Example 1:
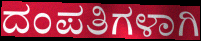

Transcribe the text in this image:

ದಂಪತಿಗಳಾಗಿ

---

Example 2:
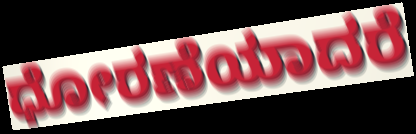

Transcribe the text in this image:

ಧೋರಣೆಯಾದರೆ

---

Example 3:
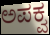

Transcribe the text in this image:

ಅಪಕ್ವ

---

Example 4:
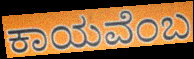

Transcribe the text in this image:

ಕಾಯವೆಂಬ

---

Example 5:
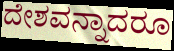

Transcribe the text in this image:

ದೇಶವನ್ನಾದರೂ